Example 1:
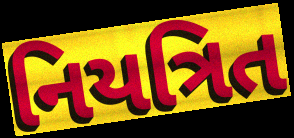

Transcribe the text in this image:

નિયત્રિત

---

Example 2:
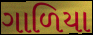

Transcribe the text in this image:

ગાળિયા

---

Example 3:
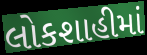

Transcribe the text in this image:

લોકશાહીમાં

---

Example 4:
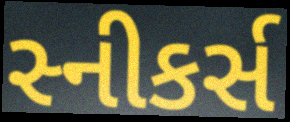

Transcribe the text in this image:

સ્નીકર્સ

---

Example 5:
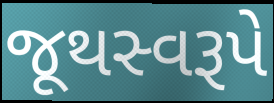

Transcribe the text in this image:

જૂથસ્વરૂપે